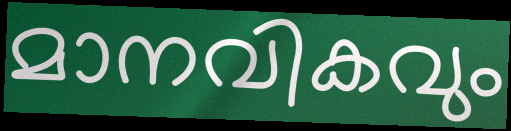
മാനവികവും